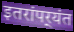
इतरांपर्यंत